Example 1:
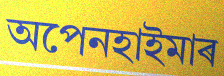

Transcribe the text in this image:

অপেনহাইমাৰ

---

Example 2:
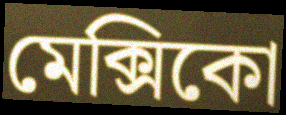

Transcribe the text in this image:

মেক্সিকো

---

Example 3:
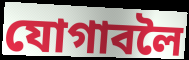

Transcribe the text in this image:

যোগাবলৈ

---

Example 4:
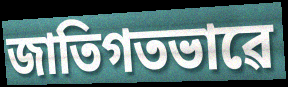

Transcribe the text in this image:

জাতিগতভাৱে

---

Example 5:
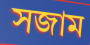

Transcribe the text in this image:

সজাম